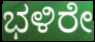
ಭಳಿರೇ